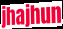
jhajhun